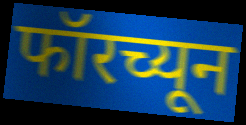
फॉरच्यून